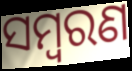
ସମ୍ଵରଣ